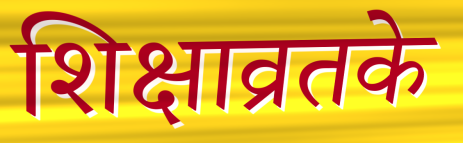
शिक्षाव्रतके